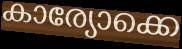
കാര്യോക്കെ